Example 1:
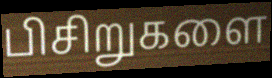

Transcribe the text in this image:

பிசிறுகளை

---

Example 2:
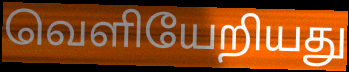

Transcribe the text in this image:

வெளியேறியது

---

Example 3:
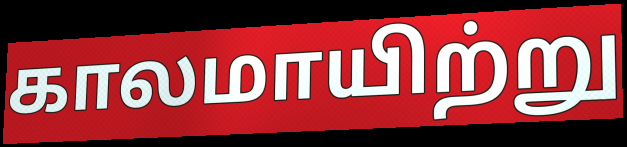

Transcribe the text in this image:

காலமாயிற்று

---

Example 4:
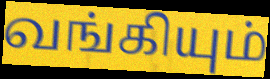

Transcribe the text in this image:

வங்கியும்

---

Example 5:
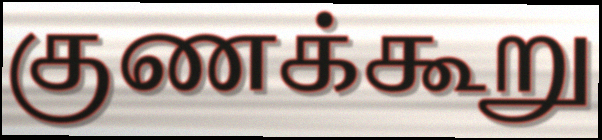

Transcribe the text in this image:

குணக்கூறு